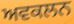
ਅਵਕਲਨ